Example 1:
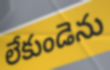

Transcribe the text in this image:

లేకుండెను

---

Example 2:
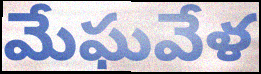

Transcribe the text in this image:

మేఘవేళ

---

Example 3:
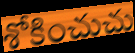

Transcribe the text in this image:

శోకించుచు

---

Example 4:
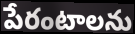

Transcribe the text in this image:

పేరంటాలను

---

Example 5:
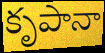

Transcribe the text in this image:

కృపానా